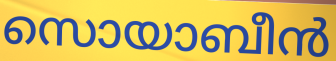
സൊയാബീൻ